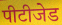
पीटीजेड